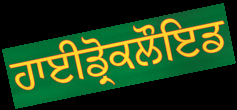
ਹਾਈਡ੍ਰੋਕਲੌਇਡ